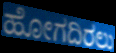
ಹೋಗದಿರಲು